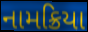
નામક્રિયા